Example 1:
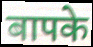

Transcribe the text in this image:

बापके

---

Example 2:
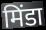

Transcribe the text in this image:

मिंडा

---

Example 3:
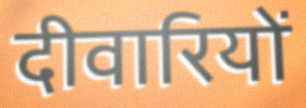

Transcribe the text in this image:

दीवारियों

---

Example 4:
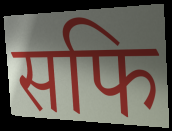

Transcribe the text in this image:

सफि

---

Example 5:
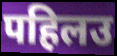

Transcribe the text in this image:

पहिलउ